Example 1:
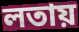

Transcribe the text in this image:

লতায়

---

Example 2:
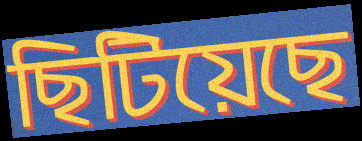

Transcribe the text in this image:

ছিটিয়েছে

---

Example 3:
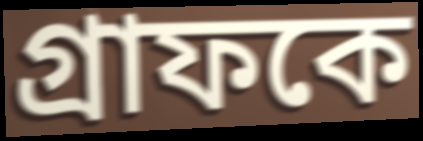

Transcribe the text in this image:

গ্রাফকে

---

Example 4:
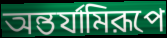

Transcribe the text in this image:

অন্তর্যামিরূপে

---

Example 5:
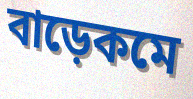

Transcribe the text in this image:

বাড়েকমে